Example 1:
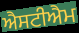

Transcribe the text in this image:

ਐਸਟੀਐਮ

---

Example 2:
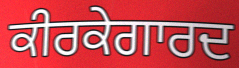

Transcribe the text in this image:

ਕੀਰਕੇਗਾਰਦ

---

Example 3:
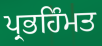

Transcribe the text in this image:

ਪ੍ਰਭਹਿੰਮਤ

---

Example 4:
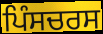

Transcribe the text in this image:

ਪਿੰਸਚਰਸ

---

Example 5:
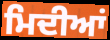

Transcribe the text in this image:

ਮਿਦੀਆਂ